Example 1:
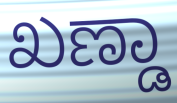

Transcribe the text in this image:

ಖಣ್ಡಾ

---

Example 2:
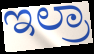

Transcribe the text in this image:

ಇಲ್ರಾ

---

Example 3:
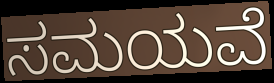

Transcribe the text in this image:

ಸಮಯವೆ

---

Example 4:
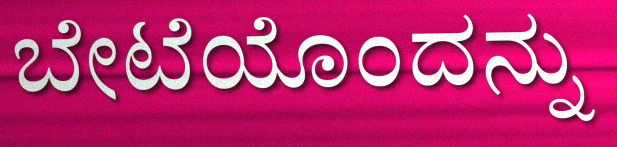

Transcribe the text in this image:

ಬೇಟೆಯೊಂದನ್ನು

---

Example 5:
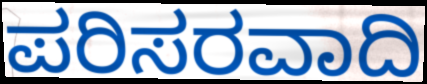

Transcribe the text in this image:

ಪರಿಸರವಾದಿ